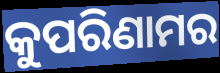
କୁପରିଣାମର